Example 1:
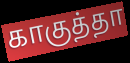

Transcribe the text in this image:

காகுத்தா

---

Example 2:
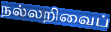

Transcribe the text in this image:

நல்லறிவைப்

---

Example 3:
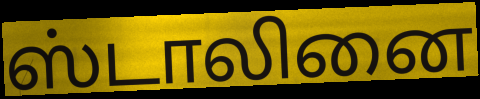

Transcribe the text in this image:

ஸ்டாலினை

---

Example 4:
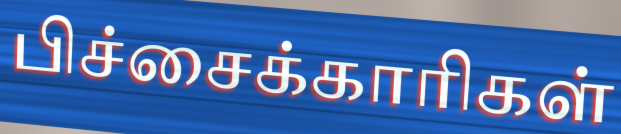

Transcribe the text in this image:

பிச்சைக்காரிகள்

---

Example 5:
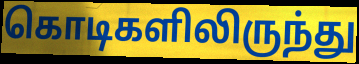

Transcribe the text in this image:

கொடிகளிலிருந்து